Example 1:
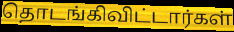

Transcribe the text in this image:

தொடங்கிவிட்டார்கள்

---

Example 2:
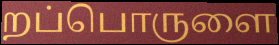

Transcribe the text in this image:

றப்பொருளை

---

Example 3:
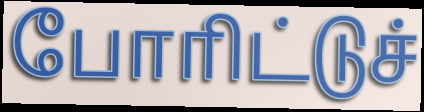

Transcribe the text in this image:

போரிட்டுச்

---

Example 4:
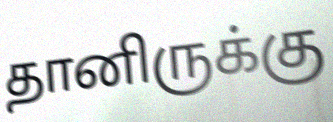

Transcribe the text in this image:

தானிருக்கு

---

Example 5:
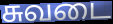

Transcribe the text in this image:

சுவடை